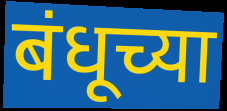
बंधूच्या